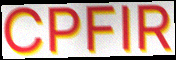
CPFIR